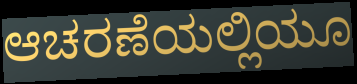
ಆಚರಣೆಯಲ್ಲಿಯೂ